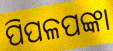
ପିପଳପଙ୍କା